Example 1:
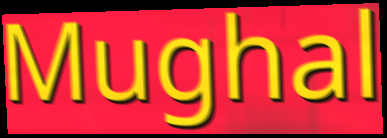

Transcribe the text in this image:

Mughal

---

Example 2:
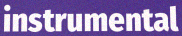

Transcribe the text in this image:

instrumental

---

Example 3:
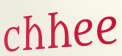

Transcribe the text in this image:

chhee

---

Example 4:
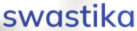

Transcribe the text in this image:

swastika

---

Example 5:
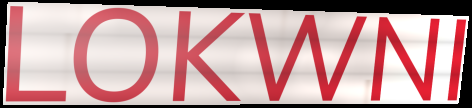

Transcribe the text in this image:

LOKWNI